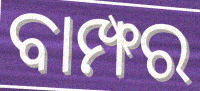
ବାମ୍ଫର